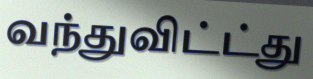
வந்துவிட்ட்து